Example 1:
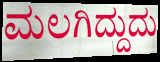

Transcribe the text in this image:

ಮಲಗಿದ್ದುದು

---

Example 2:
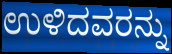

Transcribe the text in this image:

ಉಳಿದವರನ್ನು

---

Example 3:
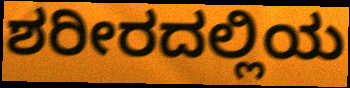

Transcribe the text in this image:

ಶರೀರದಲ್ಲಿಯ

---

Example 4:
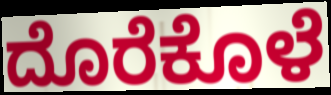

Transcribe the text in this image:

ದೊರೆಕೊಳೆ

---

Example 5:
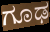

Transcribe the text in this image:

ಗೂಢ